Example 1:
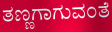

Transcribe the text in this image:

ತಣ್ಣಗಾಗುವಂತೆ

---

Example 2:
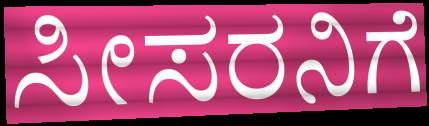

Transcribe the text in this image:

ಸೀಸರನಿಗೆ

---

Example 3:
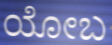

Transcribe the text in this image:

ಯೋಬ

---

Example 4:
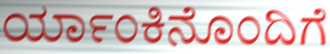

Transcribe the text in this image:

ರ್ಯಾಂಕಿನೊಂದಿಗೆ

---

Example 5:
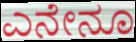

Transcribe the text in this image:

ಎನೇನೂ